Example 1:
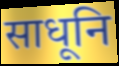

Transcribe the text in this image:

साधूनि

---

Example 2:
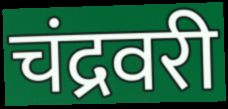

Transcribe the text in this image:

चंद्रवरी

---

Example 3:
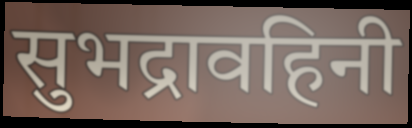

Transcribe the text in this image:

सुभद्रावहिनी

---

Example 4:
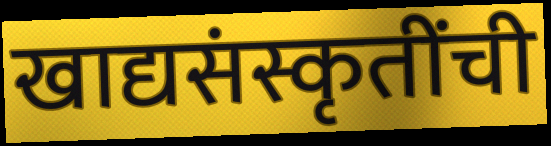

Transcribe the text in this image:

खाद्यसंस्कृतींची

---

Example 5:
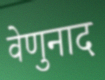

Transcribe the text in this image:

वेणुनाद